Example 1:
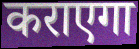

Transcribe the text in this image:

कराएगा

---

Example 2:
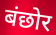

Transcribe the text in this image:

बंछोर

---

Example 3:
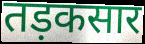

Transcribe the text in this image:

तड़कसार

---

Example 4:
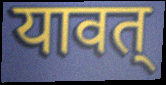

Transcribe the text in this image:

यावत्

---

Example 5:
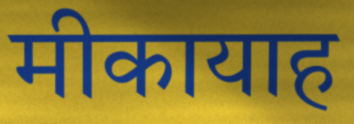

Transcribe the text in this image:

मीकायाह